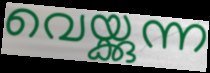
വെയ്ക്കുന്ന